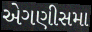
એગણીસમા